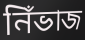
নিঁভাজ